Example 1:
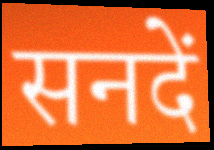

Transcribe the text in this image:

सनदें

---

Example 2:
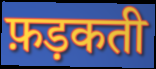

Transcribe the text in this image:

फ़ड़कती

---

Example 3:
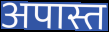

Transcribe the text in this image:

अपास्‍त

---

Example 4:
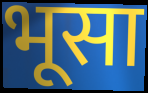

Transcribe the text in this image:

भूसा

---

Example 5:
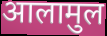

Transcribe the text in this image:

आलामुल